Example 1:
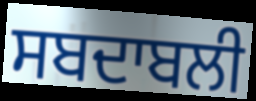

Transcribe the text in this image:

ਸਬਦਾਬਲੀ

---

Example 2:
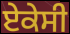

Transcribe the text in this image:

ਏਕੇਸੀ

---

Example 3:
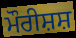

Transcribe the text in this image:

ਮੌਰੀਸ਼ਸ਼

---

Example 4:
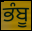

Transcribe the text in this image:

ਭੰਬੂ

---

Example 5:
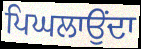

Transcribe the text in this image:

ਪਿਘਲਾਉਂਦਾ